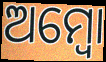
ଅମ୍ୱୋ